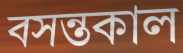
বসন্তকাল